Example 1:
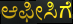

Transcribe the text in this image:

ಆಫೀಸಿಗೆ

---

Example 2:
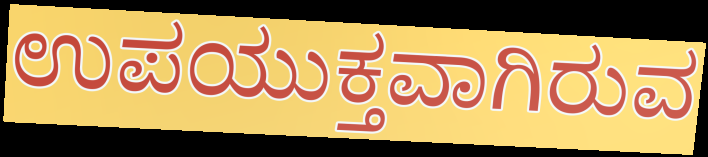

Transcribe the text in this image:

ಉಪಯುಕ್ತವಾಗಿರುವ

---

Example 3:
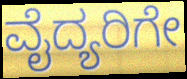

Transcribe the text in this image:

ವೈದ್ಯರಿಗೇ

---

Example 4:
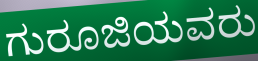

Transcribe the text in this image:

ಗುರೂಜಿಯವರು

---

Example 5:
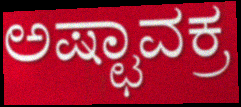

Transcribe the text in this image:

ಅಷ್ಟಾವಕ್ರ